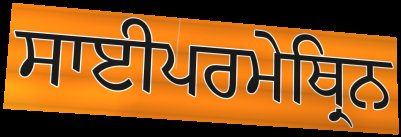
ਸਾਈਪਰਮੇਥ੍ਰਿਨ